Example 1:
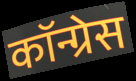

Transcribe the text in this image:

कॉन्ग्रेस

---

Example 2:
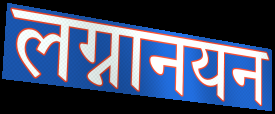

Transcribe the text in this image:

लग्नानयन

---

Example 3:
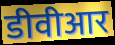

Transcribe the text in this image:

डीवीआर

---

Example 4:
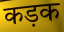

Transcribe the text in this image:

कड़क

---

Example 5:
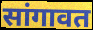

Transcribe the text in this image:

सांगावत